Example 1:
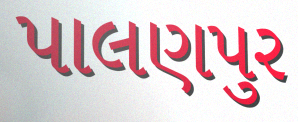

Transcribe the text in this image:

પાલણપુર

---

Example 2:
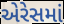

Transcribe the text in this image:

એરેસમાં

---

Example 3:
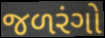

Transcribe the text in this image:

જળરંગો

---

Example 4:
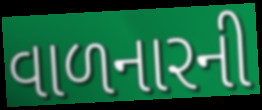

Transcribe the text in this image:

વાળનારની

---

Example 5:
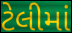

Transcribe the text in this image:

ટેલીમાં